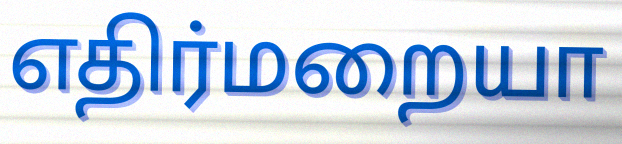
எதிர்மறையா